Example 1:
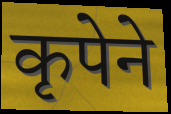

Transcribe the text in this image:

कृपेने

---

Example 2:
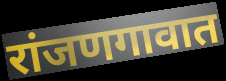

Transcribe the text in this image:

रांजणगावात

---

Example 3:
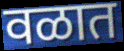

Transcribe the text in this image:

वळात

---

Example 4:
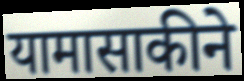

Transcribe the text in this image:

यामासाकीने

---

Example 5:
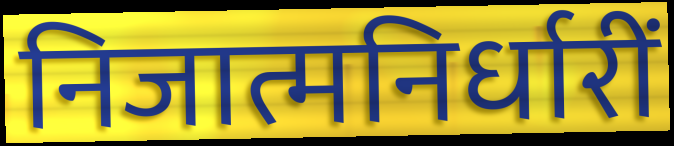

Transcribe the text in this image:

निजात्मनिर्धारीं